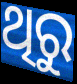
ଥିରୁ